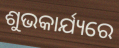
ଶୁଭକାର୍ଯ୍ୟରେ